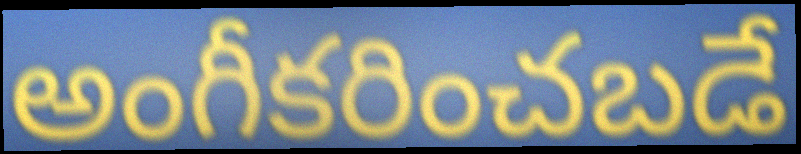
అంగీకరించబడే